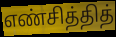
எண்சித்தித்